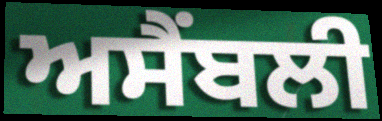
ਅਸੈਂਬਲੀ